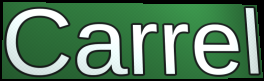
Carrel